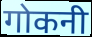
गोकनी